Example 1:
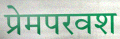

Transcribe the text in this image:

प्रेमपरवश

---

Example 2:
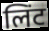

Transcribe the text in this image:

लिंट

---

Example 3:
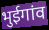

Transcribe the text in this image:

भुईगांव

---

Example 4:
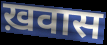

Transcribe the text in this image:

ख़वास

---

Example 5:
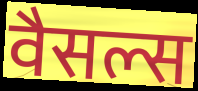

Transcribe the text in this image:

वैसल्स